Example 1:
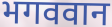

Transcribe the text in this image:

भगववान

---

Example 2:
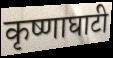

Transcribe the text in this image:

कृष्णाघाटी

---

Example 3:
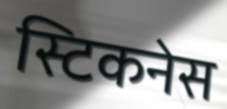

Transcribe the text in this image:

स्टिकनेस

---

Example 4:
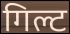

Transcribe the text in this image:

गिल्ट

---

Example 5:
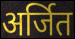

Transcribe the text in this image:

अर्जित